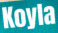
Koyla